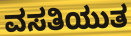
ವಸತಿಯುತ